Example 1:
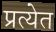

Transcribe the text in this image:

प्रत्येत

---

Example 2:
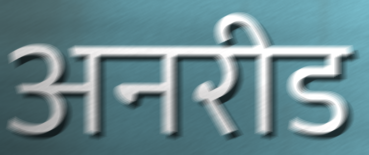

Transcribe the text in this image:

अनरीड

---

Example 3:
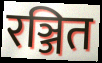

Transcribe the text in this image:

रञ्जित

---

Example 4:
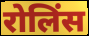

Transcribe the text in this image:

रोलिंस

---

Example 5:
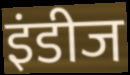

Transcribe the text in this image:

इंडीज